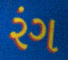
રંગ